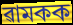
ৱামকক